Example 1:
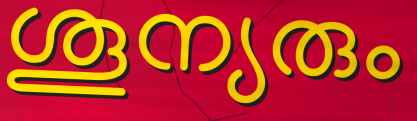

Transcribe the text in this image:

ശൂന്യരും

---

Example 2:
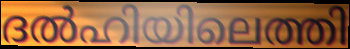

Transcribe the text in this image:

ദൽഹിയിലെത്തി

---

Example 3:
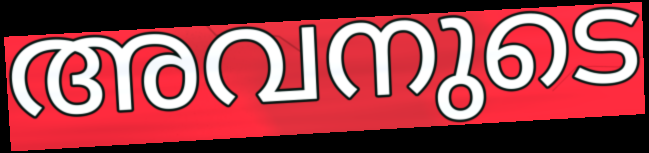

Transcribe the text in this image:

അവനുടെ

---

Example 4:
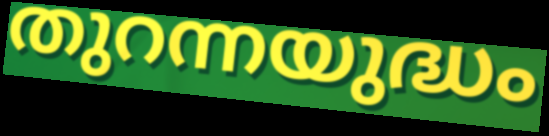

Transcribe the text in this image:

തുറന്നയുദ്ധം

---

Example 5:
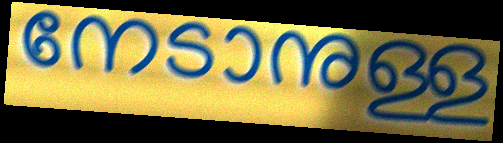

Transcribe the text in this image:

നേടാനുള്ള